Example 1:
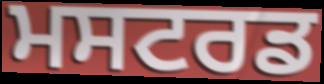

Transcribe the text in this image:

ਮਸਟਰਡ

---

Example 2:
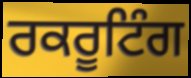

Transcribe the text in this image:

ਰਕਰੂਟਿੰਗ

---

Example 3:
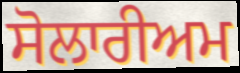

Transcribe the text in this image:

ਸੋਲਾਰੀਅਮ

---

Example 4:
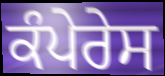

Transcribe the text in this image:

ਕੰਪੇਰੇਸ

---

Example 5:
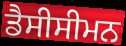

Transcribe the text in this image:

ਡੈਸੀਸੀਮਨ